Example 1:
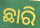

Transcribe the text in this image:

ଛାରି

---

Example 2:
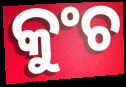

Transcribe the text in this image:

କୁଂଚ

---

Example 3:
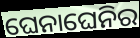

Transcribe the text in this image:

ଘେନାଘେନିର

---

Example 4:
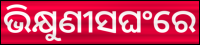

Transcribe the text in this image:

ଭିକ୍ଷୁଣୀସଘଂରେ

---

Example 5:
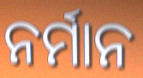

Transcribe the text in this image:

ନର୍ମାନ